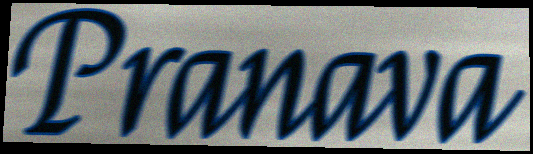
Pranava